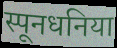
स्पूनधनिया